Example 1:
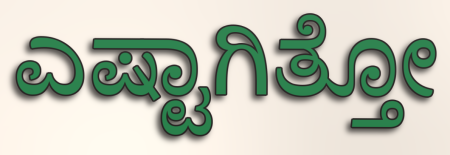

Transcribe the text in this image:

ಎಷ್ಟಾಗಿತ್ತೋ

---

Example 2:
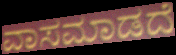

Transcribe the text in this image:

ವಾಸಮಾಡದೆ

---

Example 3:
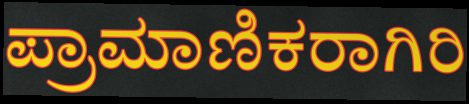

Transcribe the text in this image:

ಪ್ರಾಮಾಣಿಕರಾಗಿರಿ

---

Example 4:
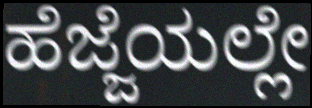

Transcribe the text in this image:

ಹೆಜ್ಜೆಯಲ್ಲೇ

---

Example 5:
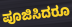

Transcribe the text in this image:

ಪೂಜಿಸಿದರೂ